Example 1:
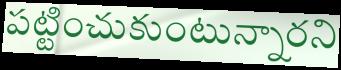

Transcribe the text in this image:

పట్టించుకుంటున్నారని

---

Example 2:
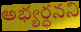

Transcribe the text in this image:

అభ్యర్ధనని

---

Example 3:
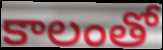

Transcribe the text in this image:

కాలంతో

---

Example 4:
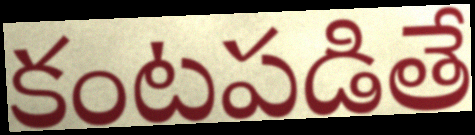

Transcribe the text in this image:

కంటపడితే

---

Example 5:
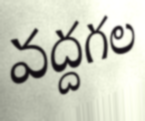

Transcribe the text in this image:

వద్దగల